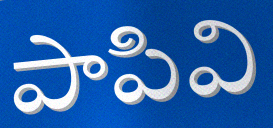
పాపివి